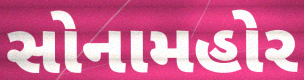
સોનામહોર